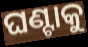
ଘଣ୍ଟାକୁ